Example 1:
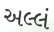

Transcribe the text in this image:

અલ્લં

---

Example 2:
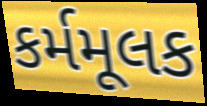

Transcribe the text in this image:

કર્મમૂલક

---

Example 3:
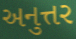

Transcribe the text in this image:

અનુત્તર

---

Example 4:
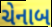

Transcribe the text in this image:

ચેનાબ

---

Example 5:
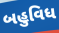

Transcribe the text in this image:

બહુવિધ